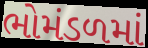
ભોમંડળમાં